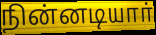
நின்னடியார்